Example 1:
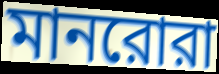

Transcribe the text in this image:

মানরোরা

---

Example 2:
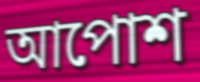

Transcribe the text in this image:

আপোশ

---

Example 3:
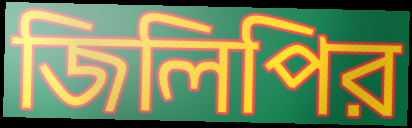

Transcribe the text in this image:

জিলিপির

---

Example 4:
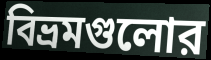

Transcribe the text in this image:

বিভ্রমগুলোর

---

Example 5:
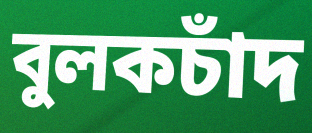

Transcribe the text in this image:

বুলকচাঁদ